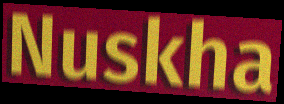
Nuskha